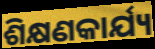
ଶିକ୍ଷଣକାର୍ଯ୍ୟ